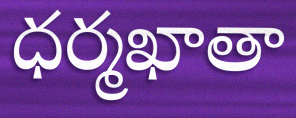
ధర్మఖాతా